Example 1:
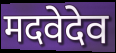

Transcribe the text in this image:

मदवेदेव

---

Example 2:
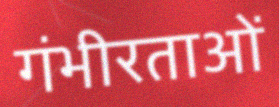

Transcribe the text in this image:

गंभीरताओं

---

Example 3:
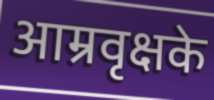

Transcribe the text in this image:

आम्रवृक्षके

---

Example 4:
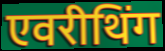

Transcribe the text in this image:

एवरीथिंग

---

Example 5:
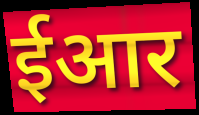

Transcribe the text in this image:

ईआर